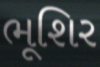
ભૂશિર